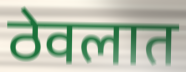
ठेवलात